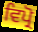
ਵਿਪ੍ਰੋ